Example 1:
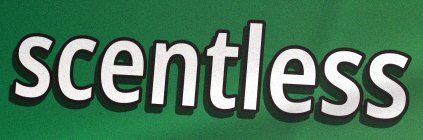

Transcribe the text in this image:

scentless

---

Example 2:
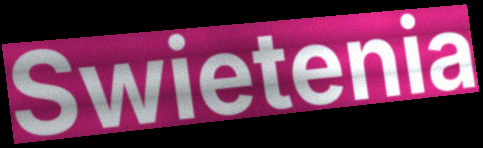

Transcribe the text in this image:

Swietenia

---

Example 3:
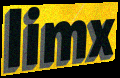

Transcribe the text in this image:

limx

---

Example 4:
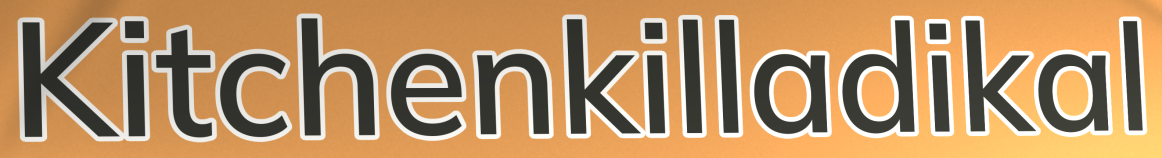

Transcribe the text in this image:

Kitchenkilladikal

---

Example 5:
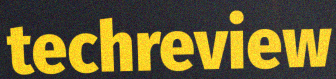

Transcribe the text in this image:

techreview